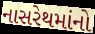
નાસરેથમાંનો